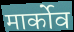
मार्कोव